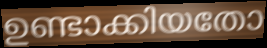
ഉണ്ടാക്കിയതോ